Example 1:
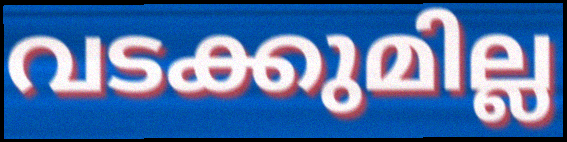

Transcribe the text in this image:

വടക്കുമില്ല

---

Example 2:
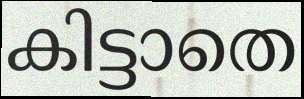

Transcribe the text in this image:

കിട്ടാതെ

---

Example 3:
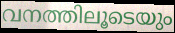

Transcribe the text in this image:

വനത്തിലൂടെയും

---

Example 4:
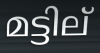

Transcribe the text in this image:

മട്ടില്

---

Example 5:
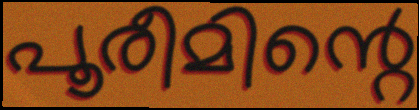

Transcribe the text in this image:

പൂരീമിന്റെ